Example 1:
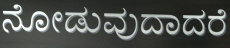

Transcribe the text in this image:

ನೋಡುವುದಾದರೆ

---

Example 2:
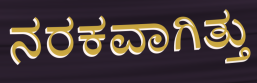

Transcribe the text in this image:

ನರಕವಾಗಿತ್ತು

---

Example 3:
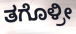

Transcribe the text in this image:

ತಗೊಳ್ರೀ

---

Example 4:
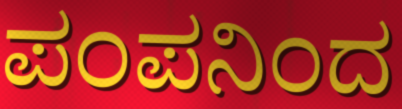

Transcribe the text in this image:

ಪಂಪನಿಂದ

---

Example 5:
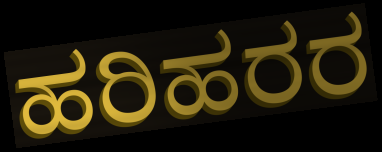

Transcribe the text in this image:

ಹರಿಹರರ